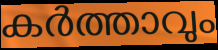
കർത്താവും